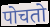
पोचतो